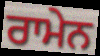
ਰਾਮੇਨ